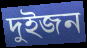
দুইজন